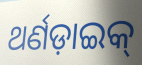
ଥର୍ଣଡ଼ାଇକ୍